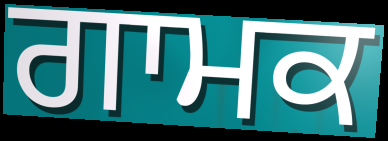
ਗਾਮਕ